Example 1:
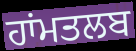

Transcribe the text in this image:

ਹਾਂਮਤਲਬ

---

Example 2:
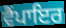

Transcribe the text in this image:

ਵੈਂਪਾਇਰ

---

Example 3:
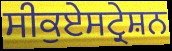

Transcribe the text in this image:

ਸੀਕੁਏਸਟ੍ਰੇਸ਼ਨ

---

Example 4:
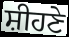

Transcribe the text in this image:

ਸ਼ੀਹਣੇ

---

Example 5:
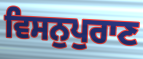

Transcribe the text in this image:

ਵਿਸਨੁਪੁਰਾਣ